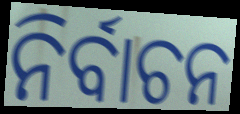
ନିର୍ବାଚନ